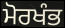
ਮੋਰਖੰਭ